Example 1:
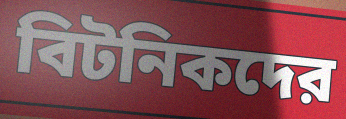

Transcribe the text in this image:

বিটনিকদের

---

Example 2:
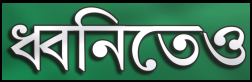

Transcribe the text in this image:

ধ্বনিতেও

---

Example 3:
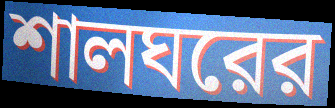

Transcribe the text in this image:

শালঘরের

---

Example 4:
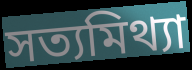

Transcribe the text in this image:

সত্যমিথ্যা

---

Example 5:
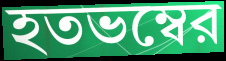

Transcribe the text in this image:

হতভম্বের